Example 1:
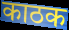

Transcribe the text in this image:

काठक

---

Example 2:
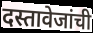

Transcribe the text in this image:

दस्तावेजांची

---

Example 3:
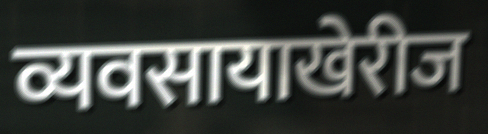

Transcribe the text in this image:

व्यवसायाखेरीज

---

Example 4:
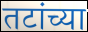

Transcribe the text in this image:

तटांच्या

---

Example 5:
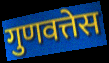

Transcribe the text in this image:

गुणवत्तेस